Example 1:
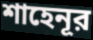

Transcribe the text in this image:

শাহেনূর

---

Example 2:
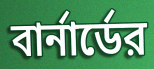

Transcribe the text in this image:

বার্নার্ডের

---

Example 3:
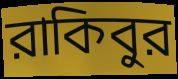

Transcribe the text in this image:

রাকিবুর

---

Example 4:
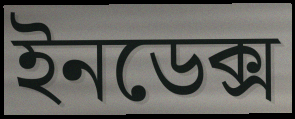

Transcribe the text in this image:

ইনডেক্স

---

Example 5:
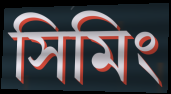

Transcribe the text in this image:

সিমিং